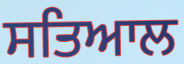
ਸਤਿਆਲ